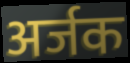
अर्जक